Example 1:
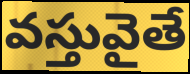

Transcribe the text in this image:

వస్తువైతే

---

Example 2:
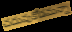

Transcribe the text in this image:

చదువుకోడమన్నా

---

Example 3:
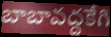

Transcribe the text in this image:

బాబావద్దకేగి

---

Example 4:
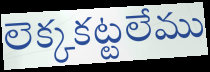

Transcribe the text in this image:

లెక్కకట్టలేము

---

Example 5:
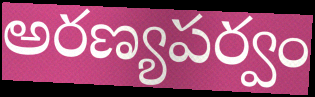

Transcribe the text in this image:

అరణ్యపర్వం